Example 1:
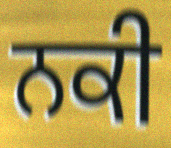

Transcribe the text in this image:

ਨਕੀ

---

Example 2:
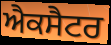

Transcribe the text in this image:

ਐਕਸੈਟਰ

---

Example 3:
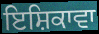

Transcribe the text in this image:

ਇਸ਼ਿਕਾਵਾ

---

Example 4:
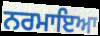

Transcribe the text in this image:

ਨਰਮਾਇਆ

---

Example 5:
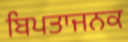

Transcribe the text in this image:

ਬਿਪਤਾਜਨਕ